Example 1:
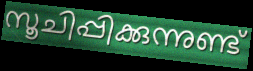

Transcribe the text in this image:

സൂചിപ്പിക്കുന്നുണ്ട്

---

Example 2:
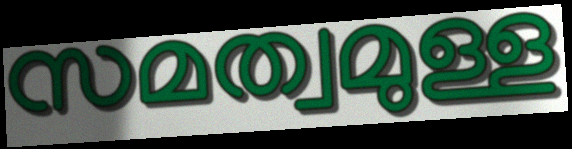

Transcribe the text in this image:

സമത്വമുള്ള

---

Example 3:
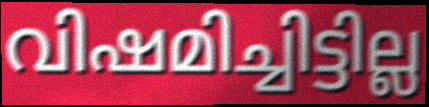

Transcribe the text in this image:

വിഷമിച്ചിട്ടില്ല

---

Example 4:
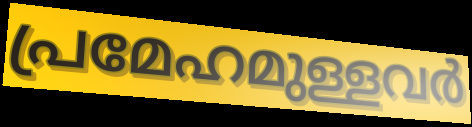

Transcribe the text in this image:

പ്രമേഹമുള്ളവർ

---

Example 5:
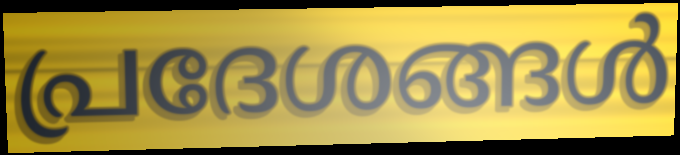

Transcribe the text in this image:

പ്രദേശങ്ങൾ